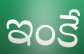
ఇంకే